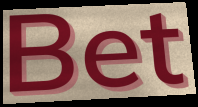
Bet